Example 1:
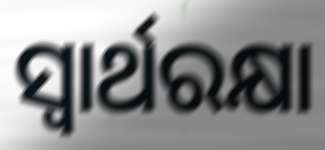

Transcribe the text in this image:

ସ୍ଵାର୍ଥରକ୍ଷା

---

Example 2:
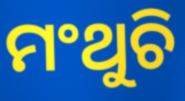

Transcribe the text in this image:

ମଂଥୁଚି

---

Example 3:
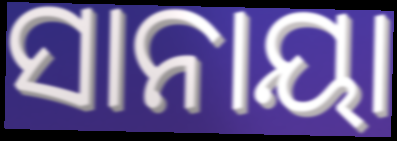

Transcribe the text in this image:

ସାନାୟା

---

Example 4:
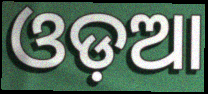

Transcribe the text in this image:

ଓଡ଼ଆ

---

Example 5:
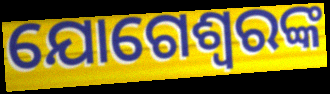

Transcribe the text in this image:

ଯୋଗେଶ୍ୱରଙ୍କ